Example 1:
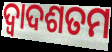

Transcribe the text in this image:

ଦ୍ୱାଦଶତମ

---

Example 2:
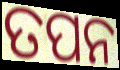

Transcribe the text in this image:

ତପନ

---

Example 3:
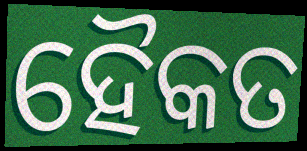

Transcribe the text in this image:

ହୈକତ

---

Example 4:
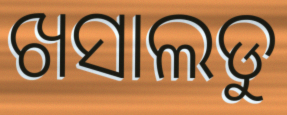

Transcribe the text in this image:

ଖସାଲଡୁ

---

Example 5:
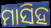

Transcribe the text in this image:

ମାସିହ